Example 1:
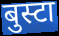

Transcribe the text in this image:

बुस्टा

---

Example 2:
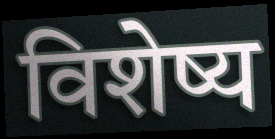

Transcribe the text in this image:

विशेष्य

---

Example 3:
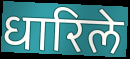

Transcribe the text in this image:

धारिले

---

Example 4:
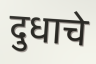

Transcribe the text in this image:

दुधाचे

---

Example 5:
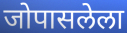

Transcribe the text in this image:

जोपासलेला